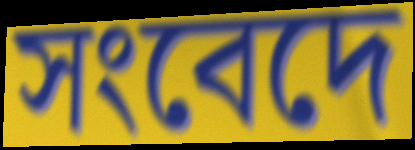
সংবেদে